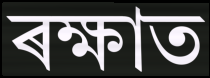
ৰক্ষাত